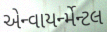
એન્વાયર્ન્મેન્ટલ